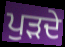
ਪੁੜਦੇ